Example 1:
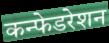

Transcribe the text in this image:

कन्‍फेडरेशन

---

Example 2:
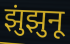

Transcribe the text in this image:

झुंझुनू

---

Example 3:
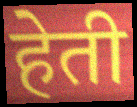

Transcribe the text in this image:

हेती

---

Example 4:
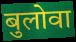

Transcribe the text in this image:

बुलोवा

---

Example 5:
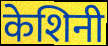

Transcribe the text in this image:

केशिनी